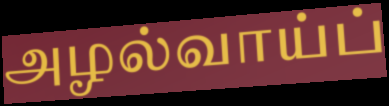
அழல்வாய்ப்